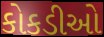
કોકડીઓ